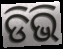
ଡିଭି